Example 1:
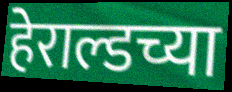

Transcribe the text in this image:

हेराल्डच्या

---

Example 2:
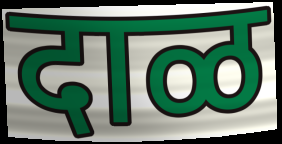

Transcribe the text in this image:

दाळ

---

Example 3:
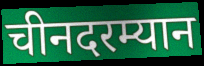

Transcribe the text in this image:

चीनदरम्यान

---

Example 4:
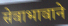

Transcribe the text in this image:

सेवाभावाने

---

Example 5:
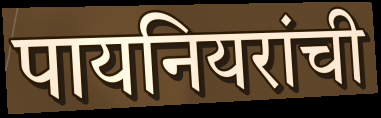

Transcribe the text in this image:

पायनियरांची